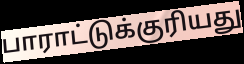
பாராட்டுக்குரியது